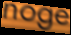
noge